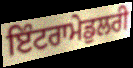
ਇੰਟਰਾਮੇਡੁਲਰੀ